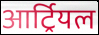
आर्ट्रियल